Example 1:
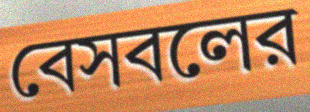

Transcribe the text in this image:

বেসবলের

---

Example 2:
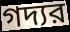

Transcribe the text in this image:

গদ্যর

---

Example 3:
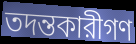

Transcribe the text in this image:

তদন্তকারীগণ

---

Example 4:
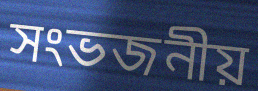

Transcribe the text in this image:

সংভজনীয়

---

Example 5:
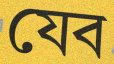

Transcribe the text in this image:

যেব